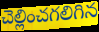
చెల్లించగలిగిన